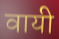
वायी